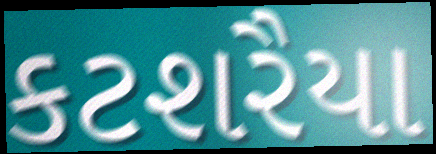
કટશરૈયા